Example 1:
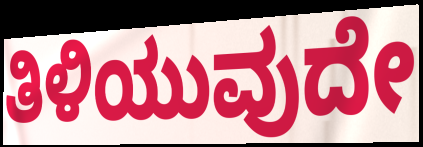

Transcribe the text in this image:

ತಿಳಿಯುವುದೇ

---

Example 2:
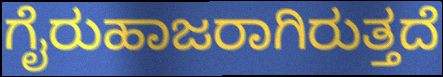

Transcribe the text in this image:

ಗೈರುಹಾಜರಾಗಿರುತ್ತದೆ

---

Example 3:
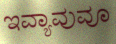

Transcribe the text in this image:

ಇವ್ಯಾವುವೂ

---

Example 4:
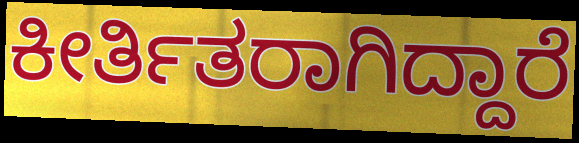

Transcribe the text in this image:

ಕೀರ್ತಿತರಾಗಿದ್ದಾರೆ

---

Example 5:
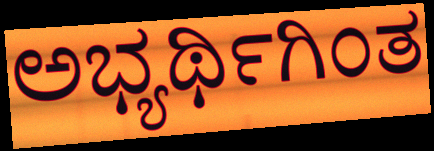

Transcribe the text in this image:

ಅಭ್ಯರ್ಥಿಗಿಂತ